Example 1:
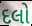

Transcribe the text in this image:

દલો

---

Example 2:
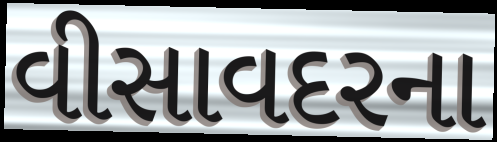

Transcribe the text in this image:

વીસાવદરના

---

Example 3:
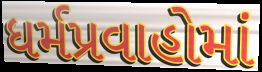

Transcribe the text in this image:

ધર્મપ્રવાહોમાં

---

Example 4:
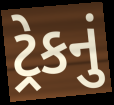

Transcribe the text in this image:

ટ્રેકનું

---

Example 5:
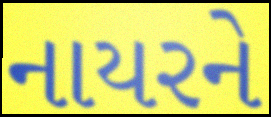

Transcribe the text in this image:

નાયરને